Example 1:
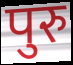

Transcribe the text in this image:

पुरु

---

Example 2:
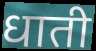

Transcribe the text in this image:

धाती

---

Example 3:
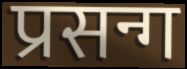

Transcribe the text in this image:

प्रसन्ग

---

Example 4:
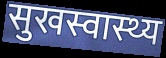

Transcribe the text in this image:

सुखस्वास्थ्य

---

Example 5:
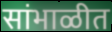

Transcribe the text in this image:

सांभाळीत